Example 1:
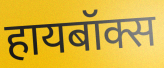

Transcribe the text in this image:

हायबॉक्स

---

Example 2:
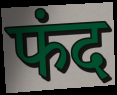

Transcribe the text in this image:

फंद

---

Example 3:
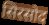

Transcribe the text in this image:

सिरसोद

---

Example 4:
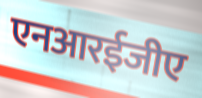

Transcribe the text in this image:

एनआरईजीए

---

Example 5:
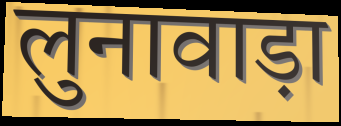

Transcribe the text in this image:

लुनावाड़ा